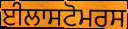
ਈਲਾਸਟੋਮਰਸ